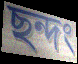
ছন্দং